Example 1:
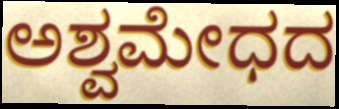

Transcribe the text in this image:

ಅಶ್ವಮೇಧದ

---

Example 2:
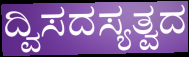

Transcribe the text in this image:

ದ್ವಿಸದಸ್ಯತ್ವದ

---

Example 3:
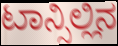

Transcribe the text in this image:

ಟಾನ್ಸಿಲ್ಲಿನ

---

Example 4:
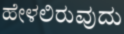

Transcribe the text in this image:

ಹೇಳಲಿರುವುದು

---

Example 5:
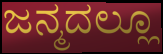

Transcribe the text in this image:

ಜನ್ಮದಲ್ಲೂ